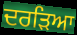
ਦਰੜਿਆ